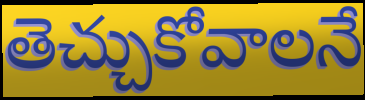
తెచ్చుకోవాలనే